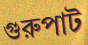
গুরুপাট